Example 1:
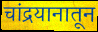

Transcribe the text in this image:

चांद्रयानातून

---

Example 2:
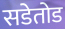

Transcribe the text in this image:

सडेतोड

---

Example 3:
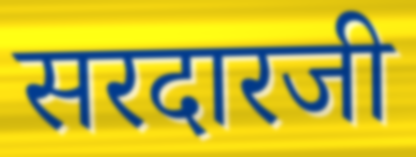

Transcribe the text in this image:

सरदारजी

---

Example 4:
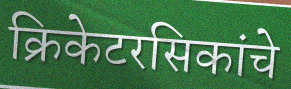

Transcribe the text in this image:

क्रिकेटरसिकांचे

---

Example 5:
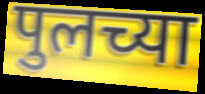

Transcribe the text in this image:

पुलच्या